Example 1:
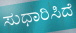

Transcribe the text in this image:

ಸುಧಾರಿಸಿದೆ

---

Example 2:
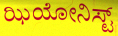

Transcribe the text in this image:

ಝಿಯೋನಿಸ್ಟ್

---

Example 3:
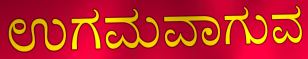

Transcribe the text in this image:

ಉಗಮವಾಗುವ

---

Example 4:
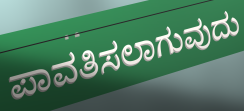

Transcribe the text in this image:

ಪಾವತಿಸಲಾಗುವುದು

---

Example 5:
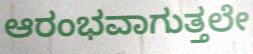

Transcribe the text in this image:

ಆರಂಭವಾಗುತ್ತಲೇ